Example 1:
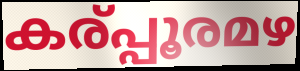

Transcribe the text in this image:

കര്പ്പൂരമഴ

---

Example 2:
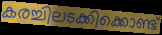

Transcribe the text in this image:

കരച്ചിലടക്കിക്കൊണ്ട്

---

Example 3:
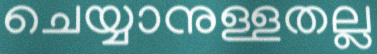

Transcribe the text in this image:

ചെയ്യാനുള്ളതല്ല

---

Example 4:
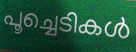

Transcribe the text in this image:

പൂച്ചെടികൾ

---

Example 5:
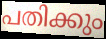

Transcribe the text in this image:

പതിക്കും